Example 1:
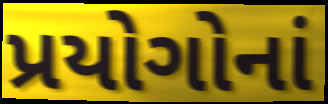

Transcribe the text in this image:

પ્રયોગોનાં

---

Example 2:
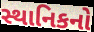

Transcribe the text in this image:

સ્થાનિકનો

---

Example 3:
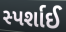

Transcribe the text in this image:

સ્પર્શાઈ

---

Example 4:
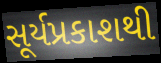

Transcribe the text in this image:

સૂર્યપ્રકાશથી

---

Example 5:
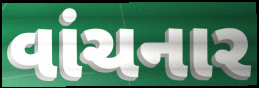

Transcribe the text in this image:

વાંચનાર